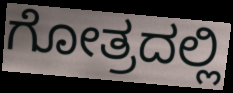
ಗೋತ್ರದಲ್ಲಿ